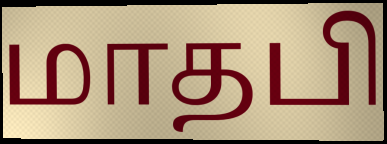
மாதபி